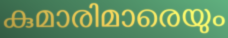
കുമാരിമാരെയും